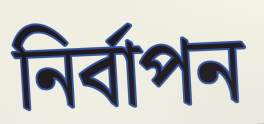
নির্বাপন